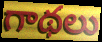
గాథలు